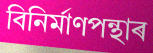
বিনিৰ্মাণপন্থাৰ